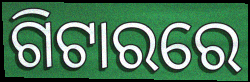
ଗିଟାରରେ